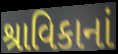
શ્રાવિકાનાં